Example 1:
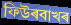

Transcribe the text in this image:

ফিউৰবাখৰ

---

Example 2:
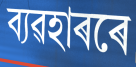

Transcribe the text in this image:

ব্যৱহাৰৰে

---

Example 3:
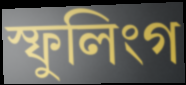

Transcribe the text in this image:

স্ফুলিংগ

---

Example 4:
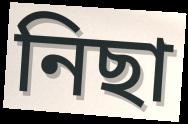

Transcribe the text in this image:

নিছা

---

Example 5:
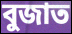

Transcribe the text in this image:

বুজাত